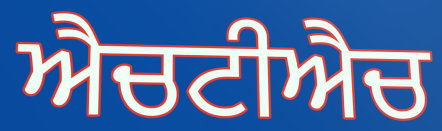
ਐਚਟੀਐਚ